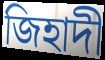
জিহাদী